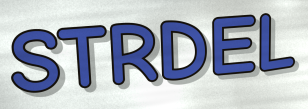
STRDEL